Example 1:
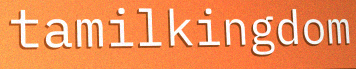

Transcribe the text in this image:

tamilkingdom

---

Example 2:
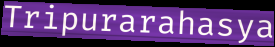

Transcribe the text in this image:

Tripurarahasya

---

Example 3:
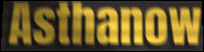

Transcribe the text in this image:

Asthanow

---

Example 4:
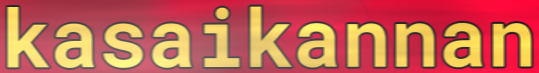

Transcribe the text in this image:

kasaikannan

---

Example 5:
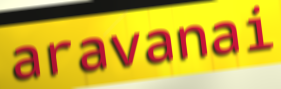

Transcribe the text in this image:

aravanai